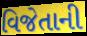
વિજેતાની